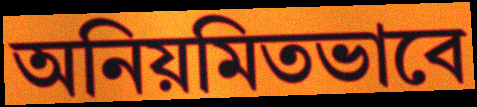
অনিয়মিতভাবে